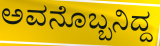
ಅವನೊಬ್ಬನಿದ್ದ